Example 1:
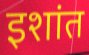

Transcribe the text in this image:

इशांत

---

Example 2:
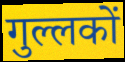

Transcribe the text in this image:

गुल्लकों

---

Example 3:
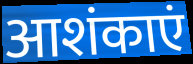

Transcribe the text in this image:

आशंकाएं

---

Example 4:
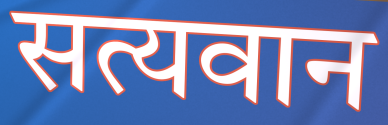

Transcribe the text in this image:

सत्यवान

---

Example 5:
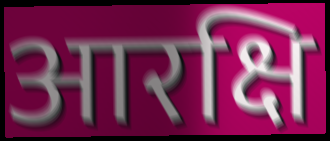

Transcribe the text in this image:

आरक्षि